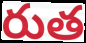
రుత